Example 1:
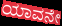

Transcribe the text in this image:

ಯಾವನೇ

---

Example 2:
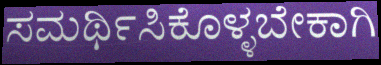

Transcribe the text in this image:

ಸಮರ್ಥಿಸಿಕೊಳ್ಳಬೇಕಾಗಿ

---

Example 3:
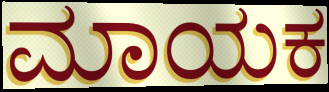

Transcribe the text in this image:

ಮಾಯಕ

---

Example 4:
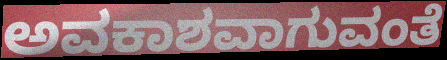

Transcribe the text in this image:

ಅವಕಾಶವಾಗುವಂತೆ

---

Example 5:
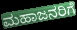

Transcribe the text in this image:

ಮಹಾಜನರಿಗೆ